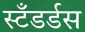
स्टँडर्डस